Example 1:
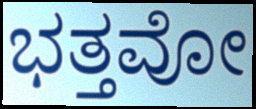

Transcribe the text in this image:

ಭತ್ತವೋ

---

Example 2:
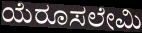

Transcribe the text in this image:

ಯೆರೂಸಲೇಮಿ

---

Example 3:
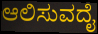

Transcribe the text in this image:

ಆಲಿಸುವದೈ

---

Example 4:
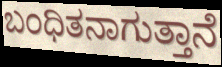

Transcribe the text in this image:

ಬಂಧಿತನಾಗುತ್ತಾನೆ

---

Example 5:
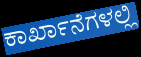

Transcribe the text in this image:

ಕಾರ್ಖಾನೆಗಳಲ್ಲಿ